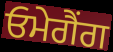
ਓਮੇਗੈਂਗ